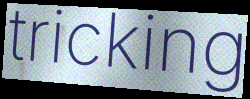
tricking